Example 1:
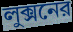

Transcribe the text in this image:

লুক্সনের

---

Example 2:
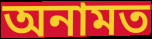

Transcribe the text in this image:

অনামত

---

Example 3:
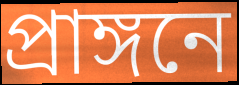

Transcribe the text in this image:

প্রাঙ্গনে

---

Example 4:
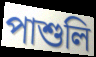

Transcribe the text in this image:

পাশুলি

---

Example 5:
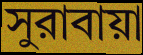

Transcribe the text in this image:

সুরাবায়া